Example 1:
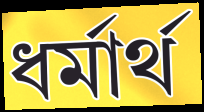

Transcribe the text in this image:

ধর্মার্থ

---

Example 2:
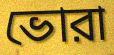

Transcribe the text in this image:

ভোরা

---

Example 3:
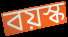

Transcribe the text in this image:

বয়স্ক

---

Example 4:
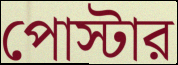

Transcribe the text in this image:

পোস্টার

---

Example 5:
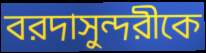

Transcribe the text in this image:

বরদাসুন্দরীকে